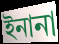
ইনানা